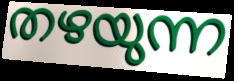
തഴയുന്ന